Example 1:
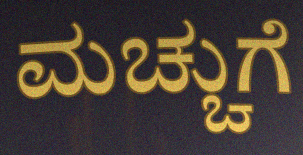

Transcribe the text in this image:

ಮಚ್ಚುಗೆ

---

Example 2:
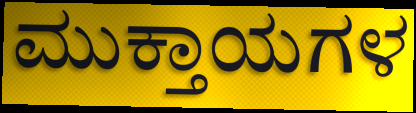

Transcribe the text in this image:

ಮುಕ್ತಾಯಗಳ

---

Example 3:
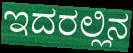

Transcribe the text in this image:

ಇದರಲ್ಲಿನ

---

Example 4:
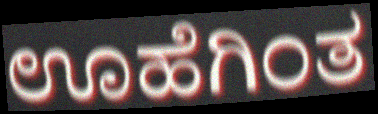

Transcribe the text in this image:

ಊಹೆಗಿಂತ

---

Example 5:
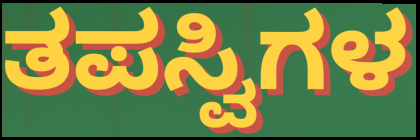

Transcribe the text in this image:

ತಪಸ್ವಿಗಳ